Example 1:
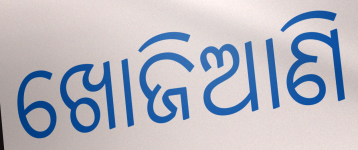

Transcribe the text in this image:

ଖୋଜିଆଣି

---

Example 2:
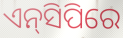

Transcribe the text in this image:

ଏନ୍‌ସିପିରେ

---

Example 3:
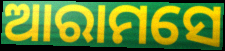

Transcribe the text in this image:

ଆରାମସେ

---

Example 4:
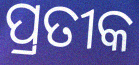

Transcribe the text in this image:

ପ୍ରତୀକ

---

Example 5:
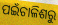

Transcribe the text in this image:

ପଇଁଚାଳିଶରୁ